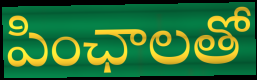
పింఛాలతో